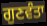
ਗੁਣਵੰਤਾ